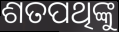
ଶତପଥିଙ୍କୁ